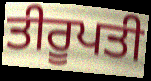
ਤੀਰੂਪਤੀ